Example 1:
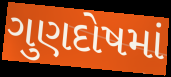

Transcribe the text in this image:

ગુણદોષમાં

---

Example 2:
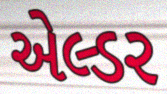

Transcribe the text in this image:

એલ્ડર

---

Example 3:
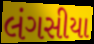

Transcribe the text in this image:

લંગસીયા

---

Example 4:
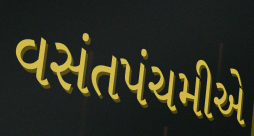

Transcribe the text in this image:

વસંતપંચમીએ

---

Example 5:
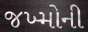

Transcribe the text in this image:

જખ્મોની